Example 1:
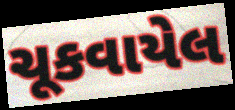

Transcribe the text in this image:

ચૂકવાયેલ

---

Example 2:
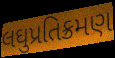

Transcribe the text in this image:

લઘુપ્રતિક્રમણ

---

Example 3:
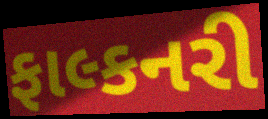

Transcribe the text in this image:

ફાલ્કનરી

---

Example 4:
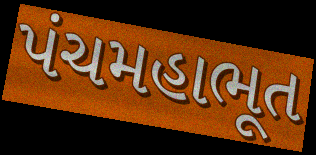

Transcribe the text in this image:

પંચમહાભૂત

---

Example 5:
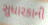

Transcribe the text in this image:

સુધારકાની